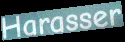
Harasser